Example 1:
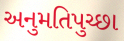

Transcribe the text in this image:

અનુમતિપુચ્છા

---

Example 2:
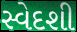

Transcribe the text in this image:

સ્વેદશી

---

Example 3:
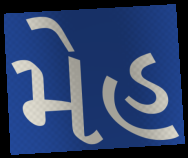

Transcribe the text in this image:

મેહ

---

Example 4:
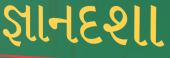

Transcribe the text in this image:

જ્ઞાનદશા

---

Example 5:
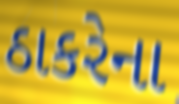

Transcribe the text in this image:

ઠાકરેના